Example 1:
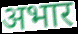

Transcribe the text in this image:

अभार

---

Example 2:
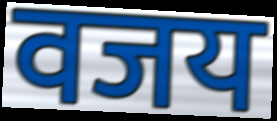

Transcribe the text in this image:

वजय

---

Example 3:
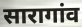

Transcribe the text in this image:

सारागांव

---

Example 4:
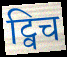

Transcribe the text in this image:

ट्विच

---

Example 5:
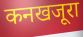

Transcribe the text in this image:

कनखजूरा